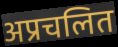
अप्रचलित